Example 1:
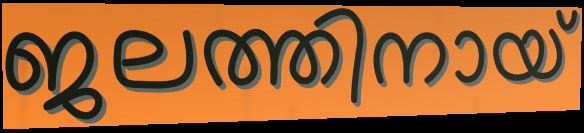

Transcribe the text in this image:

ജലത്തിനായ്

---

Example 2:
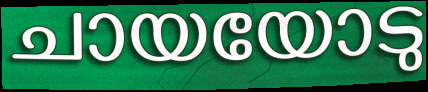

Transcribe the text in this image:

ചായയോടു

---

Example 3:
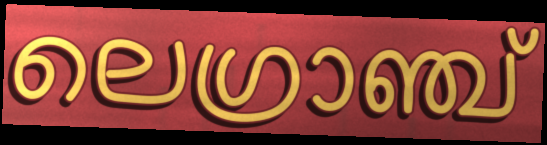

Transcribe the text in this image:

ലെഗ്രാഞ്ച്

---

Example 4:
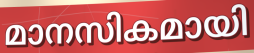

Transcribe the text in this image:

മാനസികമായി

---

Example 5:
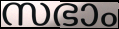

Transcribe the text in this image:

സഭാം